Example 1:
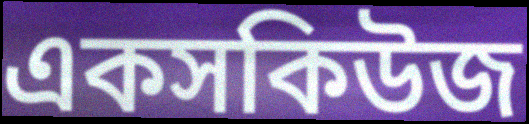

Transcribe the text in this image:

একসকিউজ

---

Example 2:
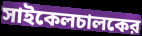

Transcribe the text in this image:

সাইকেলচালকের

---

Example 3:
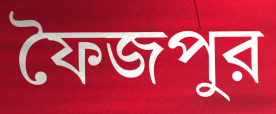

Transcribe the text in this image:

ফৈজপুর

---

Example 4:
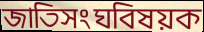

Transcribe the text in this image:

জাতিসংঘবিষয়ক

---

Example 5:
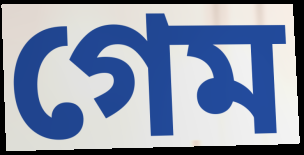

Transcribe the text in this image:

গেম